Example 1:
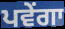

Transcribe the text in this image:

ਪਵੇਂਗਾ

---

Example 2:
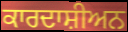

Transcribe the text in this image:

ਕਾਰਦਾਸ਼ੀਅਨ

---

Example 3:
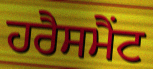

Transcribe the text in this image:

ਹਰੈਸਮੈਂਟ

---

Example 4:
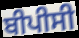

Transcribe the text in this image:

ਬੀਪੀਸੀ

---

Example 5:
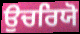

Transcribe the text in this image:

ਉਚਰਿਯੋ